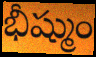
భీష్ముం